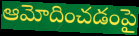
ఆమోదించడంపై